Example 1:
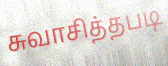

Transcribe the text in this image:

சுவாசித்தபடி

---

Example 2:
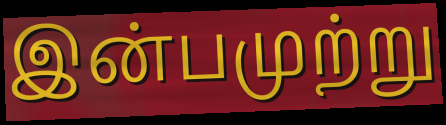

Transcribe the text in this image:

இன்பமுற்று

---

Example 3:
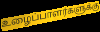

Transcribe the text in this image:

உழைப்பாளர்களுக்கு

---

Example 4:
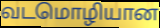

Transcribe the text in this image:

வடமொழியான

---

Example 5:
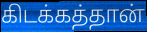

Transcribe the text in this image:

கிடக்கத்தான்